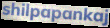
shilpapankaj